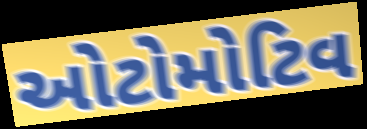
ઓટોમોટિવ